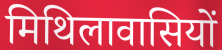
मिथिलावासियों